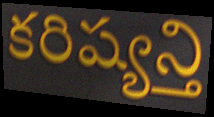
కరిష్యన్తి